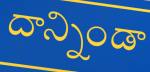
దాన్నిండా